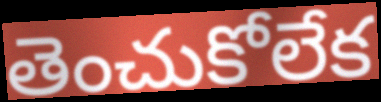
తెంచుకోలేక